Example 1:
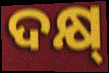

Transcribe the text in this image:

ଦକ୍ଷ୍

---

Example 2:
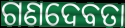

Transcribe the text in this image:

ଗଣଦେବତା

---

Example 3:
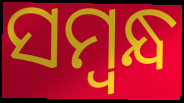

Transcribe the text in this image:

ସମ୍ବନ୍ଧ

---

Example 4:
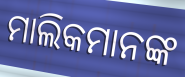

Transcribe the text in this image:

ମାଲିକମାନଙ୍କ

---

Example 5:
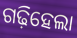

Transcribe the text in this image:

ଗଢ଼ିହେଲା